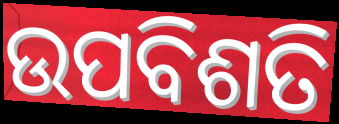
ଉପବିଶତି